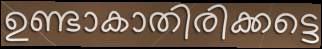
ഉണ്ടാകാതിരിക്കട്ടെ